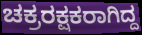
ಚಕ್ರರಕ್ಷಕರಾಗಿದ್ದ